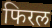
फिरल